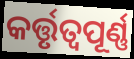
କର୍ତ୍ତୃତ୍ୱପୂର୍ଣ୍ଣ